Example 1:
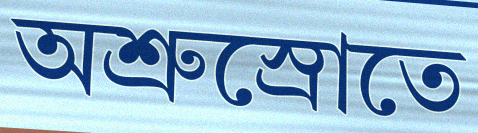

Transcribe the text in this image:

অশ্রুস্রোতে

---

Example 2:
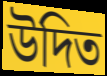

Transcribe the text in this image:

উদিত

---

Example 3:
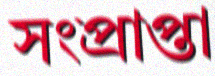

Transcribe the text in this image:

সংপ্রাপ্তা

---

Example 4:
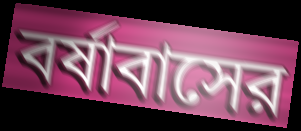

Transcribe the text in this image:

বর্ষাবাসের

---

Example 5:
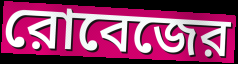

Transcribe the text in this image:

রোবেজের